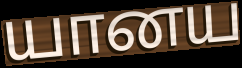
யானய